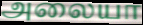
அலையா